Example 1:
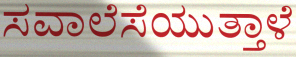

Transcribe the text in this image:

ಸವಾಲೆಸೆಯುತ್ತಾಳೆ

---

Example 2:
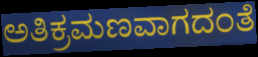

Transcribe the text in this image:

ಅತಿಕ್ರಮಣವಾಗದಂತೆ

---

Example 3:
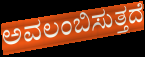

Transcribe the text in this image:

ಅವಲಂಬಿಸುತ್ತದೆ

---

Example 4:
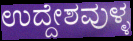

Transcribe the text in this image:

ಉದ್ದೇಶವುಳ್ಳ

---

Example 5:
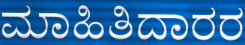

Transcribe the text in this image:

ಮಾಹಿತಿದಾರರ